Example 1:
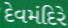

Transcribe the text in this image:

દેવમંદિરે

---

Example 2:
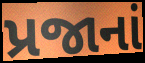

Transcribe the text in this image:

પ્રજાનાં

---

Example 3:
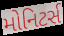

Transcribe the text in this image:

મોનિટર્સ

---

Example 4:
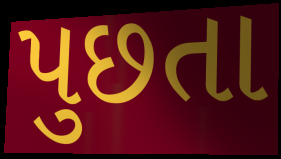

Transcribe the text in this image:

પુછતા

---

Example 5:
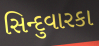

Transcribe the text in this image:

સિન્દુવારકા